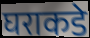
घराकडे